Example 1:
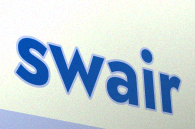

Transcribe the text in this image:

swair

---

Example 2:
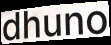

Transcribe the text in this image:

dhuno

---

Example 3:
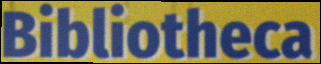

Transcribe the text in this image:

Bibliotheca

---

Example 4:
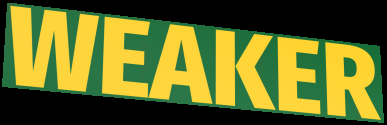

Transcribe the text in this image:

WEAKER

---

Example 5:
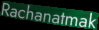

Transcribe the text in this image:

Rachanatmak